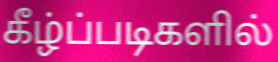
கீழ்ப்படிகளில்